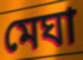
মেঘা